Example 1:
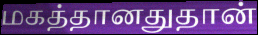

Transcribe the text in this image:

மகத்தானதுதான்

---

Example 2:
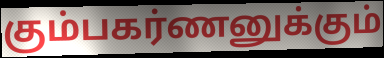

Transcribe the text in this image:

கும்பகர்ணனுக்கும்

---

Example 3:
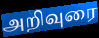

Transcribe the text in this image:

அறிவுரை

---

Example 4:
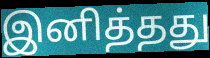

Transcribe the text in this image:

இனித்தது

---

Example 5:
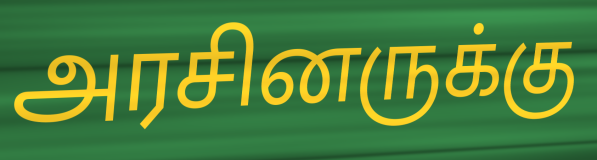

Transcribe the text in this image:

அரசினருக்கு